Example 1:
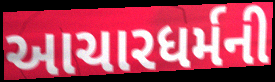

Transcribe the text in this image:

આચારધર્મની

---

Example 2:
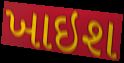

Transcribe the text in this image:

ખાઇશ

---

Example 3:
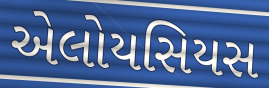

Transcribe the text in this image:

એલોયસિયસ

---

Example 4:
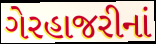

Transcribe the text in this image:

ગેરહાજરીનાં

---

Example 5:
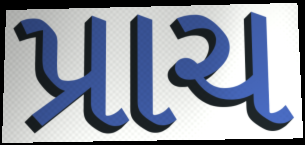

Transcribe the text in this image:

પ્રાચ